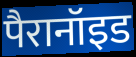
पैरानॉइड